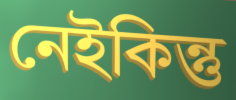
নেইকিন্তু